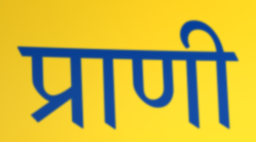
प्राणी